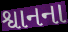
શ્વાનના